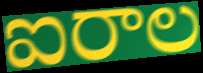
ఐరాల